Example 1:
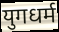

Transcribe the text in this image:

युगधर्म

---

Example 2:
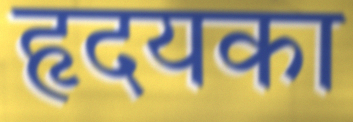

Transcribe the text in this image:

हृदयका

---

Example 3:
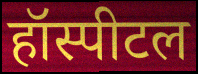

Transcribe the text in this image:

हॉस्पीटल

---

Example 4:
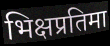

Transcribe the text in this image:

भिक्षप्रतिमा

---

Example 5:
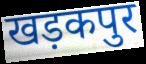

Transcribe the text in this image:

खड़कपुर